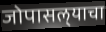
जोपासल्याचा